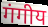
गंगीय